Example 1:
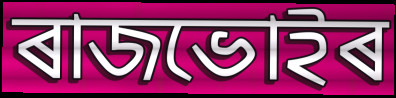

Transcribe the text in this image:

ৰাজভোইৰ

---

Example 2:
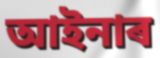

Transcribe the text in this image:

আইনাৰ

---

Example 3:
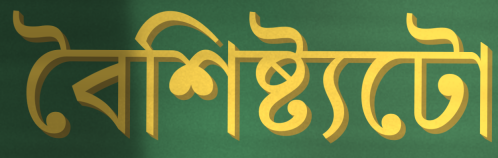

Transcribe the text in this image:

বৈশিষ্ট্যটো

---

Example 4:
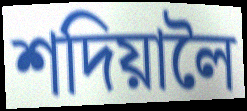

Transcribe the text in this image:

শদিয়ালৈ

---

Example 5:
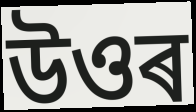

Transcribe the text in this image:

উওৰ